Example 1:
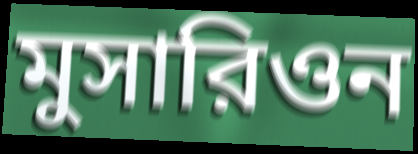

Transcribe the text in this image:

মুসারিওন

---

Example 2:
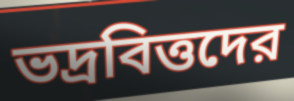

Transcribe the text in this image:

ভদ্রবিত্তদের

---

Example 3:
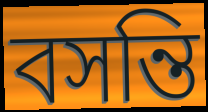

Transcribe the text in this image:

বসন্তি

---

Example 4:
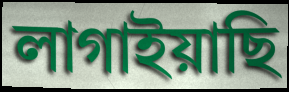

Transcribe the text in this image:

লাগাইয়াছি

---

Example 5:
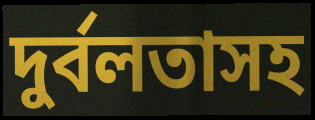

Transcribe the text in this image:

দুর্বলতাসহ